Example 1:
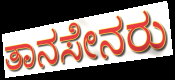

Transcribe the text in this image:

ತಾನಸೇನರು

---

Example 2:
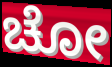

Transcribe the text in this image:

ಚೋ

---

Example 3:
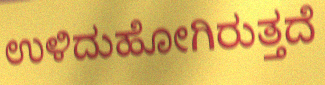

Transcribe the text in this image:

ಉಳಿದುಹೋಗಿರುತ್ತದೆ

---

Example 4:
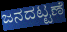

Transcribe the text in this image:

ಜನದಟ್ಟಣೆ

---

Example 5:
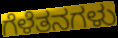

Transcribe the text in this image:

ಗೆಳೆತನಗಳು